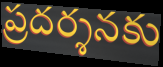
ప్రదర్శనకు